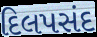
દિલપસંદ